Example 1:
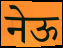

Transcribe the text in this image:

नेऊ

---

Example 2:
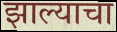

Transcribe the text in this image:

झाल्‍याचा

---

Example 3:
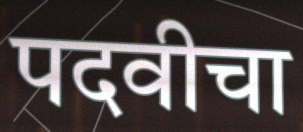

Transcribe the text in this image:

पदवीचा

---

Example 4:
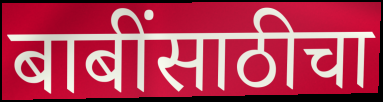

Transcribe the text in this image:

बाबींसाठीचा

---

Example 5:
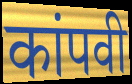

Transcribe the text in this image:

कांपवी